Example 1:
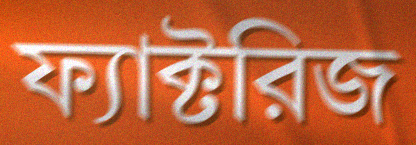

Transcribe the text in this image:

ফ্যাক্টরিজ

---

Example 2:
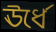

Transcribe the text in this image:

ঊর্ধে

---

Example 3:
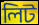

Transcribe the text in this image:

লিট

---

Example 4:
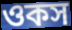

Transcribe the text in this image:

ওকস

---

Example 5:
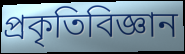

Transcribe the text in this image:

প্রকৃতিবিজ্ঞান